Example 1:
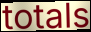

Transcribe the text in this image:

totals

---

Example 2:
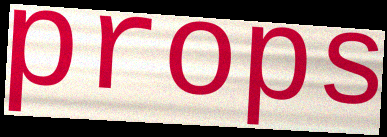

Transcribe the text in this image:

props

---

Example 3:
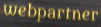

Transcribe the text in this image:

webpartner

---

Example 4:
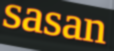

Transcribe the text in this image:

sasan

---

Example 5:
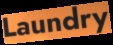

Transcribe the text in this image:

Laundry